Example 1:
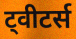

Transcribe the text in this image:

ट्वीटर्स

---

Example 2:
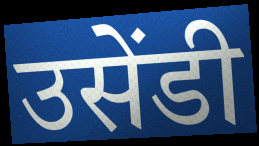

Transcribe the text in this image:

उसेंडी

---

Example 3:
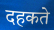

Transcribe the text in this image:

दहकते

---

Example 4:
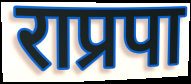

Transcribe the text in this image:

राप्रपा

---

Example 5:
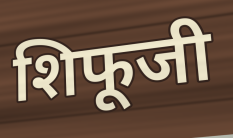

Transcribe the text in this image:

शिफूजी